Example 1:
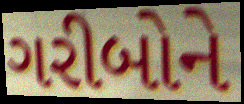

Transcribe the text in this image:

ગરીબોને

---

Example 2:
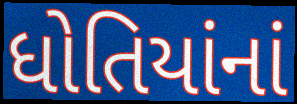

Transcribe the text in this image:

ધોતિયાંનાં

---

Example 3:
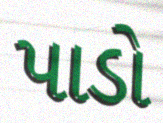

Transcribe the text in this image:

પાડો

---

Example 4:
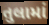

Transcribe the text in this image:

તુલામાં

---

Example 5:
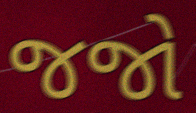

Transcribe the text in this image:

જજો